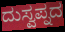
ದುಸ್ವಪ್ನದ